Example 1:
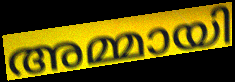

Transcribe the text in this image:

അമ്മായി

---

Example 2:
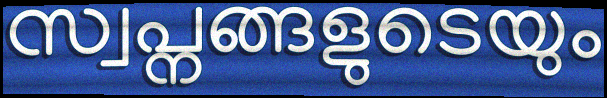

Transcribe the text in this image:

സ്വപ്നങ്ങളുടെയും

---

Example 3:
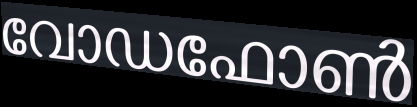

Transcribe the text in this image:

വോഡഫോൺ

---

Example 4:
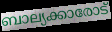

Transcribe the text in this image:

ബാല്യക്കാരോട്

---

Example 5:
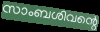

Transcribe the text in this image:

സാംബശിവന്റെ